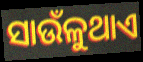
ସାଉଁଳୁଥାଏ